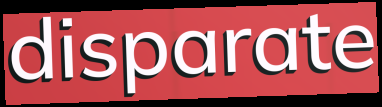
disparate